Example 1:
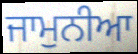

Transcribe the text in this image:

ਜਾਮੁਨੀਆ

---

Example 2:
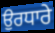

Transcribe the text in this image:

ਉਰਧਾਰੇ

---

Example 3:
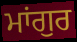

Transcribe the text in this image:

ਮਾਂਗੁਰ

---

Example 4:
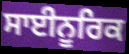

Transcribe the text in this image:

ਸਾਈਨੂਰਿਕ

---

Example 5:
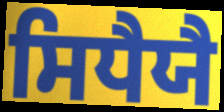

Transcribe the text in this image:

ਸਿਧੈਯੈ